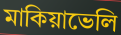
মাকিয়াভেলি